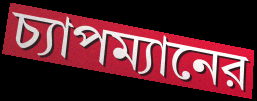
চ্যাপম্যানের